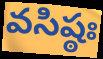
వసిష్ఠః